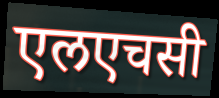
एलएचसी